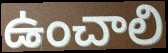
ఉంచాలి